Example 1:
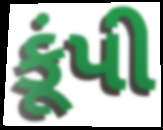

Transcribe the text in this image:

કૂંપી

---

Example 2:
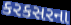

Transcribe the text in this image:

કરકસરના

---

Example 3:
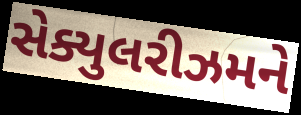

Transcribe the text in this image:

સેક્યુલરીઝમને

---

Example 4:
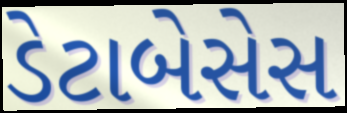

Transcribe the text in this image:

ડેટાબેસેસ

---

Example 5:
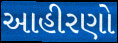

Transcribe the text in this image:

આહીરણો